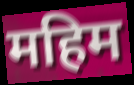
महिम